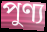
পুণ্য